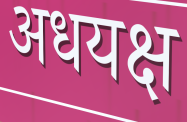
अधयक्ष